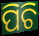
ପିଚି